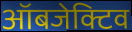
ऑबजेक्टिव